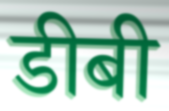
डीबी